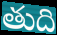
తుది